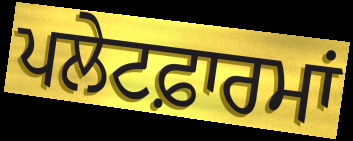
ਪਲੇਟਫ਼ਾਰਮਾਂ